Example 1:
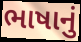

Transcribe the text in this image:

ભાષાનું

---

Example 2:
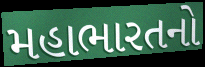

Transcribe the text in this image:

મહાભારતનો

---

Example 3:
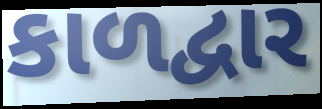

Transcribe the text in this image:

કાળદ્વાર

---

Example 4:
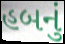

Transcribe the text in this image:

હબનું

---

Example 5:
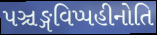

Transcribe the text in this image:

પઞ્ચઙ્ગવિપ્પહીનોતિ